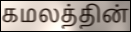
கமலத்தின்